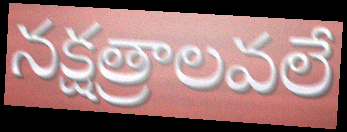
నక్షత్రాలవలే